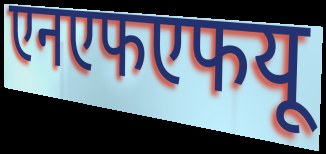
एनएफएफयू